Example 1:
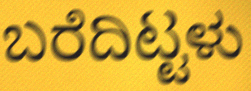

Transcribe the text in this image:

ಬರೆದಿಟ್ಟಳು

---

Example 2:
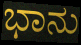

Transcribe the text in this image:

ಭಾನು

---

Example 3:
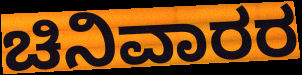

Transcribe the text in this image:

ಚಿನಿವಾರರ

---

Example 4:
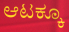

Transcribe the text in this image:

ಆಟಕ್ಕೂ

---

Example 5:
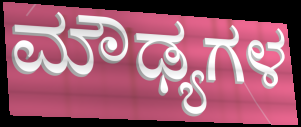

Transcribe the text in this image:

ಮೌಢ್ಯಗಳ